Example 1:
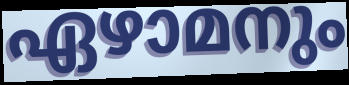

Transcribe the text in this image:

ഏഴാമനും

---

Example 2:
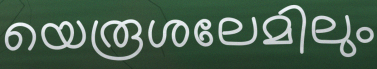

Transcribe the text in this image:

യെരൂശലേമിലും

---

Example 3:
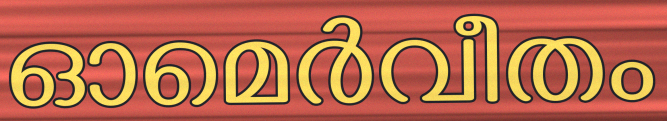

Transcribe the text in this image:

ഓമെർവീതം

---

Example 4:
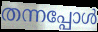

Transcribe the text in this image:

തന്നപ്പോൾ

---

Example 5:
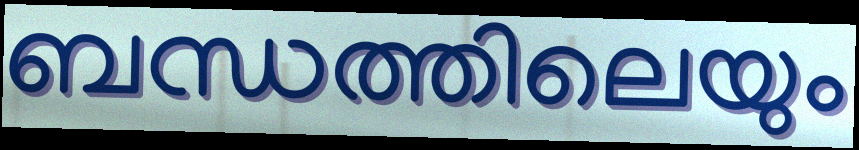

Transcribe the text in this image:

ബന്ധത്തിലെയും